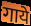
गाये